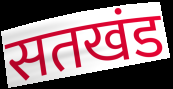
सतखंड